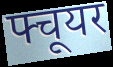
फ्चूयर